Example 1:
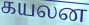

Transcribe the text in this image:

கயலன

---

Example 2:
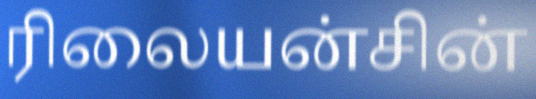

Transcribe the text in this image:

ரிலையன்சின்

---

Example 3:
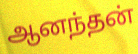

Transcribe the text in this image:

ஆனந்தன்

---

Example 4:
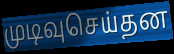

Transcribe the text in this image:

முடிவுசெய்தன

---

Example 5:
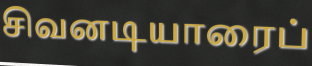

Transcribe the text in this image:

சிவனடியாரைப்